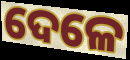
ଦେଳେ